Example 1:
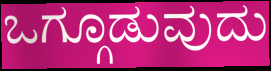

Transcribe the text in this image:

ಒಗ್ಗೂಡುವುದು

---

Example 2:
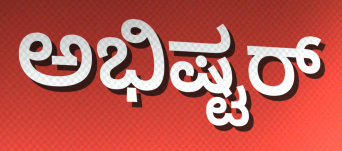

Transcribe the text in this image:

ಅಭಿಷ್ಟರ್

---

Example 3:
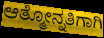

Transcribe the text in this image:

ಆತ್ಮೋನ್ನತಿಗಾಗಿ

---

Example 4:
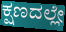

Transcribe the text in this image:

ಕ್ಷಣದಲ್ಲೇ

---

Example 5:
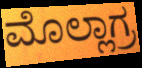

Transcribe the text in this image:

ಮೊಲ್ಲಾಗ್ರ